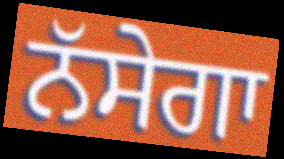
ਨੱਸੇਗਾ